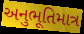
અનુભૂતિમાત્ર